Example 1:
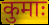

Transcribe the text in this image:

कुमाः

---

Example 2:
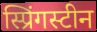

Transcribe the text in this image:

स्प्रिंगस्टीन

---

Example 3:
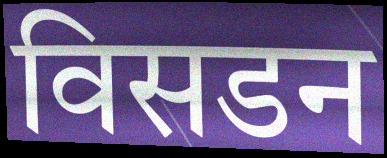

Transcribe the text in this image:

विसडन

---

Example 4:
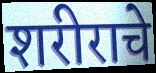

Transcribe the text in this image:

शरीराचे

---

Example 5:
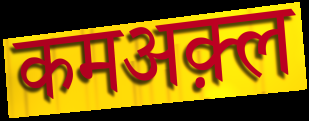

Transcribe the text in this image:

कमअक़्ल